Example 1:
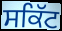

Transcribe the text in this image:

ਸਕਿੱਟ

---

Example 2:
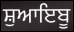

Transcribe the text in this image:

ਸ਼ੁਆਇਬੂ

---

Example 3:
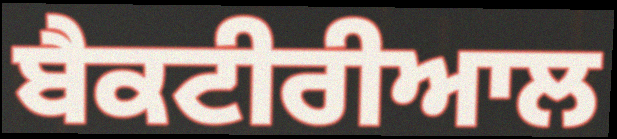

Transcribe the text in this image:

ਬੈਕਟੀਰੀਆਲ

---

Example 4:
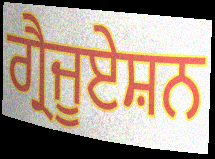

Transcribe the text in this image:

ਗ੍ਰੈਜੂਏਸ਼ਨ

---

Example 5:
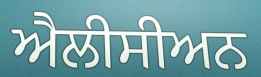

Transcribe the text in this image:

ਐਲੀਸੀਅਨ